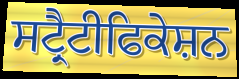
ਸਟ੍ਰੈਟੀਫਿਕੇਸ਼ਨ